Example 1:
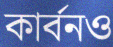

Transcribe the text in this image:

কার্বনও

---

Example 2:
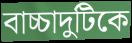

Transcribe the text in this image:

বাচ্চাদুটিকে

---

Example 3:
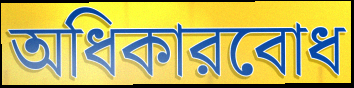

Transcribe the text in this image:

অধিকারবোধ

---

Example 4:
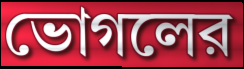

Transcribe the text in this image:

ভোগলের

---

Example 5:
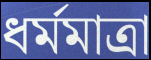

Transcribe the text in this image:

ধর্মমাত্রা